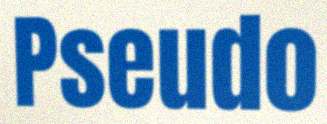
Pseudo